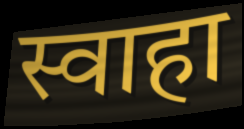
स्‍वाहा